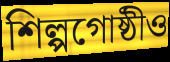
শিল্পগোষ্ঠীও